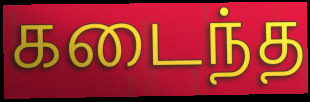
கடைந்த